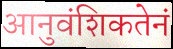
आनुवंशिकतेनं